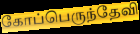
கோப்பெருந்தேவி